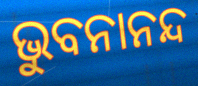
ଭୁବନାନନ୍ଦ